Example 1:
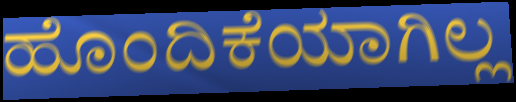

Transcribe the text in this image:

ಹೊಂದಿಕೆಯಾಗಿಲ್ಲ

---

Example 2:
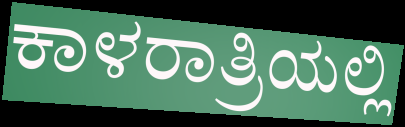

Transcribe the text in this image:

ಕಾಳರಾತ್ರಿಯಲ್ಲಿ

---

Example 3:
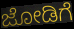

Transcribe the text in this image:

ಜೋಡಿಗೆ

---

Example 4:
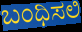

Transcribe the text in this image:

ಬಂಧಿಸಲಿ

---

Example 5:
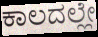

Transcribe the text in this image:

ಕಾಲದಲ್ಲೇ